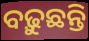
ବଢ଼ୁଛନ୍ତି